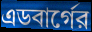
এডবার্গের